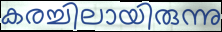
കരച്ചിലായിരുന്നു